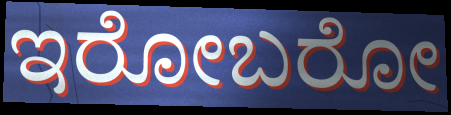
ಇರೋಬರೋ